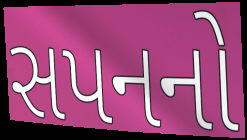
સપનનો